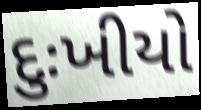
દુઃખીયો